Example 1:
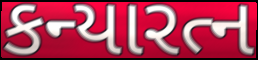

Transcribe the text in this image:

કન્યારત્ન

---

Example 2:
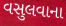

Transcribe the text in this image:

વસુલવાના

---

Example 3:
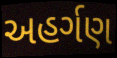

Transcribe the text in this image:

અહર્ગણ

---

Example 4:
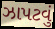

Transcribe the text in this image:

ઝાપટવું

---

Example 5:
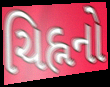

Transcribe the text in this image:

ચિહ્નનો